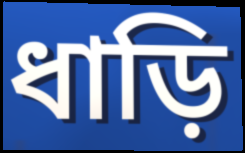
ধাড়ি